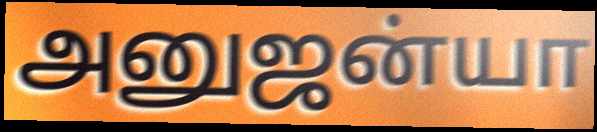
அனுஜன்யா